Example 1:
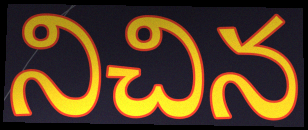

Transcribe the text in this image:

నిచిన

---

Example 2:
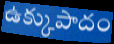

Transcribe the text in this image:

ఉక్కుపాదం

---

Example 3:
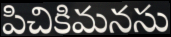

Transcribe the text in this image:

పిచికిమనసు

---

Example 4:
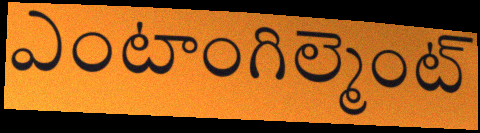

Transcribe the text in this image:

ఎంటాంగిల్మెంట్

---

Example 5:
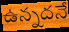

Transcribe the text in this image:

ఉన్నదనే